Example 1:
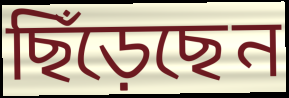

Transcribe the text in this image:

ছিঁড়েছেন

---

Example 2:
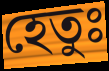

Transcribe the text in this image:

হেতুঃ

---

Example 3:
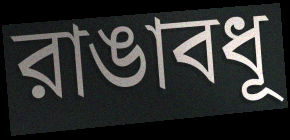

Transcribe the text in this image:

রাঙাবধূ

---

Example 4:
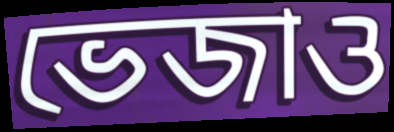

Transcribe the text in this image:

ভেজাও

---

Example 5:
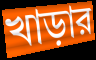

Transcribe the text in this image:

খাড়ার